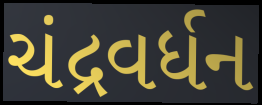
ચંદ્રવર્ધન